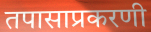
तपासाप्रकरणी